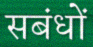
सबंधों